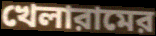
খেলারামের